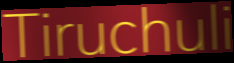
Tiruchuli